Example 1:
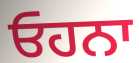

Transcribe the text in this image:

ਓਹਨਾ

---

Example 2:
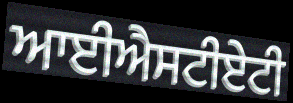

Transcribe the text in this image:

ਆਈਐਸਟੀਏਟੀ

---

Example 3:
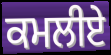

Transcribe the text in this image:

ਕਮਲੀਏ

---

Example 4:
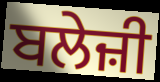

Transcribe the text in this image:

ਬਲੇਜ਼ੀ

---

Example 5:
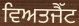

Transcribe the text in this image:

ਵਿਅਤਜੈੱਟ